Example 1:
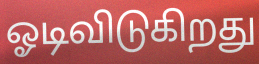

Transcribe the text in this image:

ஓடிவிடுகிறது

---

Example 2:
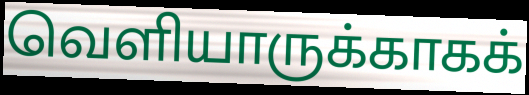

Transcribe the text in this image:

வெளியாருக்காகக்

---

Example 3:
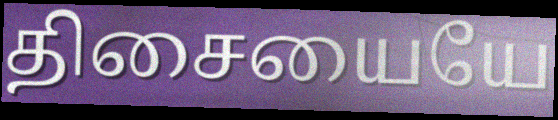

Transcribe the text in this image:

திசையையே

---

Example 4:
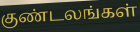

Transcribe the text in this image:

குண்டலங்கள்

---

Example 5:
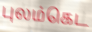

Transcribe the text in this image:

புலம்கெட